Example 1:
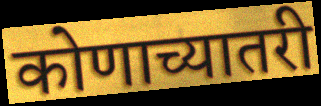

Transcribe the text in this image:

कोणाच्यातरी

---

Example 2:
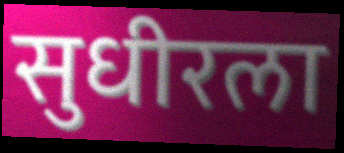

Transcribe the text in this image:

सुधीरला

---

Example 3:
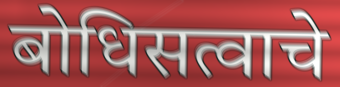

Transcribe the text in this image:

बोधिसत्वाचे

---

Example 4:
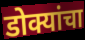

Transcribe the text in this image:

डोक्यांचा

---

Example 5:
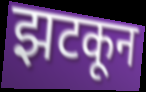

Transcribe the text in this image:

झटकून